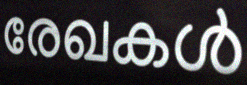
രേഖകൾ